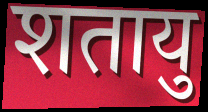
शतायु